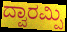
ದ್ವಾರಮ್ಪಿ